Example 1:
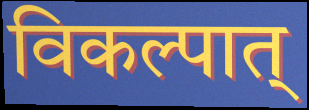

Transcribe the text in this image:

विकल्पात्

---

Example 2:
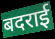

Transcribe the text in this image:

बदराई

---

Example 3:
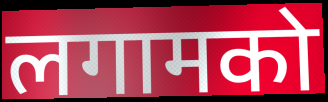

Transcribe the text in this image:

लगामको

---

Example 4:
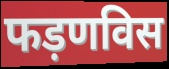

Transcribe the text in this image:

फड़णविस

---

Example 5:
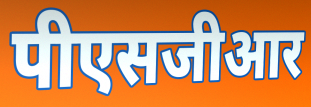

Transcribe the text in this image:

पीएसजीआर